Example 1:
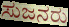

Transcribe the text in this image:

ಸುಜನರು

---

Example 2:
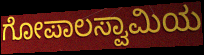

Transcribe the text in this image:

ಗೋಪಾಲಸ್ವಾಮಿಯ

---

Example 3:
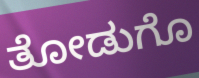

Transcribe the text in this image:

ತೋಡುಗೊ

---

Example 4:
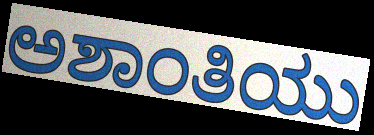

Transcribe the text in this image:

ಅಶಾಂತಿಯು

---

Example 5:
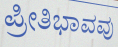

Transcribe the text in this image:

ಪ್ರೀತಿಭಾವವು